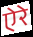
ऐरे